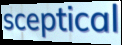
sceptical